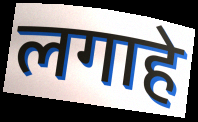
लगाहे